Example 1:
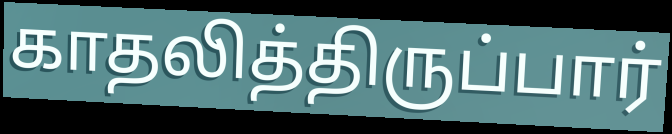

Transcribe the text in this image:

காதலித்திருப்பார்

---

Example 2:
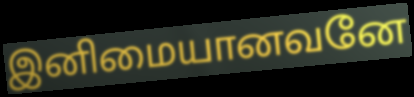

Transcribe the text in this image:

இனிமையானவனே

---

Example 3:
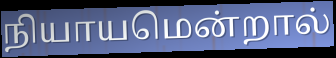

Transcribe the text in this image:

நியாயமென்றால்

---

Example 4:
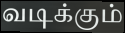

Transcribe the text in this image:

வடிக்கும்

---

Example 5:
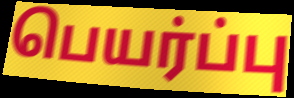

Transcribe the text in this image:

பெயர்ப்பு